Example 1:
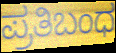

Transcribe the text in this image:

ಪ್ರತಿಬಂಧ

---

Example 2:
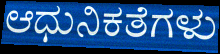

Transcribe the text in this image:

ಆಧುನಿಕತೆಗಳು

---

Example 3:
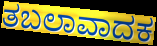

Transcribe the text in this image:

ತಬಲಾವಾದಕ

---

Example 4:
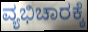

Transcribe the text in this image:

ವ್ಯಭಿಚಾರಕ್ಕೆ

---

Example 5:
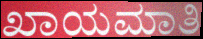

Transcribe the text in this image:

ಖಾಯಮಾತಿ